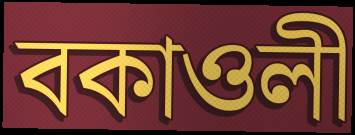
বকাওলী